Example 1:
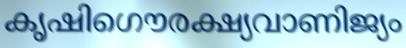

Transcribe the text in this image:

കൃഷിഗൌരക്ഷ്യവാണിജ്യം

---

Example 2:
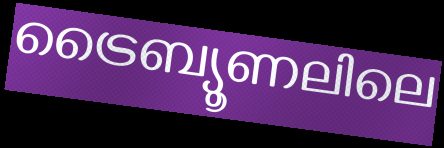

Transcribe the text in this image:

ട്രൈബ്യൂണലിലെ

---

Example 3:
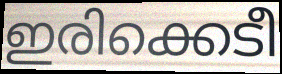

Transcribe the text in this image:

ഇരിക്കെടീ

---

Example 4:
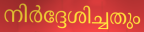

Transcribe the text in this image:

നിർദ്ദേശിച്ചതും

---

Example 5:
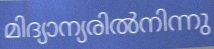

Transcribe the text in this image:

മിദ്യാന്യരിൽനിന്നു